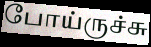
போய்ருச்சு